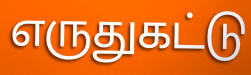
எருதுகட்டு